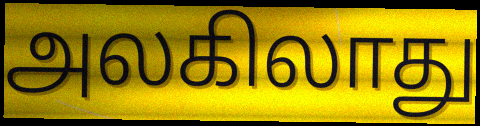
அலகிலாது